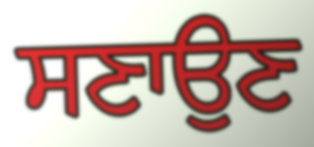
ਸਣਾਉਣ